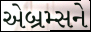
એબ્રમ્સને